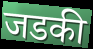
जडकी